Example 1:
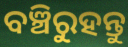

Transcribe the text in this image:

ବଞ୍ଚିରୁହନ୍ତୁ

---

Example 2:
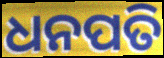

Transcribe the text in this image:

ଧନପତି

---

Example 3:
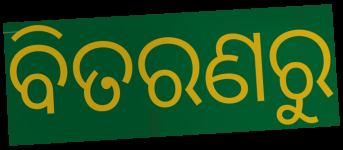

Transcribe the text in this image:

ବିତରଣରୁ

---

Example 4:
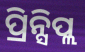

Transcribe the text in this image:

ପ୍ରିନ୍ସିପ୍ଲ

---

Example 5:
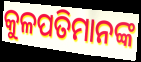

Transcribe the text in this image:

କୁଳପତିମାନଙ୍କ